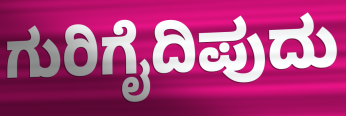
ಗುರಿಗೈದಿಪುದು